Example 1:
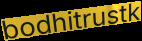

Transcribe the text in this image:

bodhitrustk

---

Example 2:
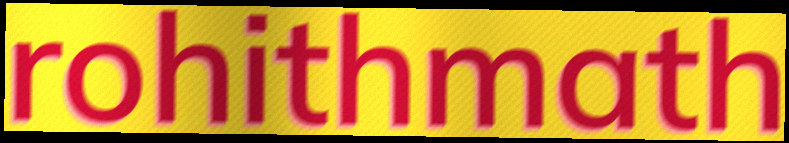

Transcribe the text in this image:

rohithmath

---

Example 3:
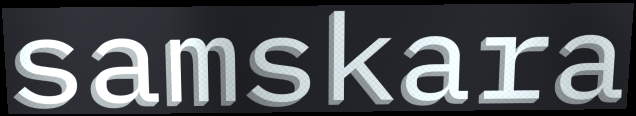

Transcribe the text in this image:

samskara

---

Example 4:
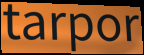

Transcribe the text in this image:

tarpor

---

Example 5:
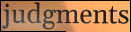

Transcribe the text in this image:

judgments